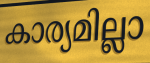
കാര്യമില്ലാ